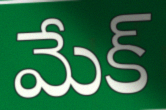
మేక్